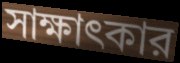
সাক্ষাৎকার